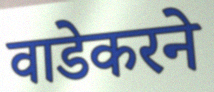
वाडेकरने